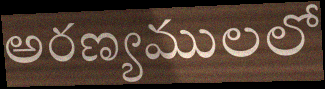
అరణ్యములలో